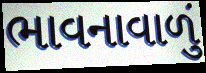
ભાવનાવાળું